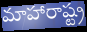
మాహారాష్ట్ర